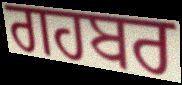
ਗਹਬਰ